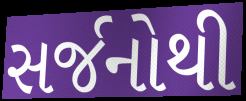
સર્જનોથી